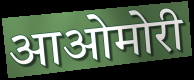
आओमोरी